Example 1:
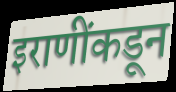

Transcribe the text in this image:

इराणींकडून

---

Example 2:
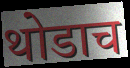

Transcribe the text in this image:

थोडाच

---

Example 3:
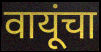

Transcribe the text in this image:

वायूंचा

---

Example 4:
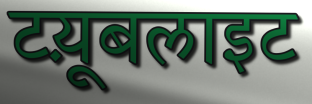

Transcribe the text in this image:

टय़ूबलाइट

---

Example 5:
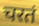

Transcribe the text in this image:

चरतं